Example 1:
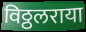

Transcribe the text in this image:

विठ्ठलराया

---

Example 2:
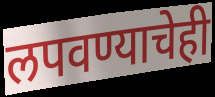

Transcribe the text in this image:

लपवण्याचेही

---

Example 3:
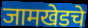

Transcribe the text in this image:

जामखेडचे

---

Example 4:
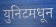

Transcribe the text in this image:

युनिटमधून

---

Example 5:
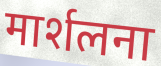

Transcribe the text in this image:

मार्शलना